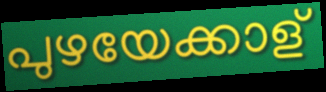
പുഴയേക്കാള്